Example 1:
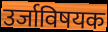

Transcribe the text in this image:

उर्जाविषयक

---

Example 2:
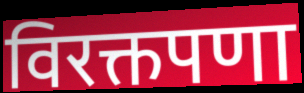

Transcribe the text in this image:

विरक्तपणा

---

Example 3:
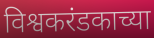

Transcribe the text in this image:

विश्वकरंडकाच्या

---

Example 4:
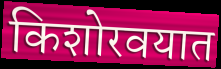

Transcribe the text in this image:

किशोरवयात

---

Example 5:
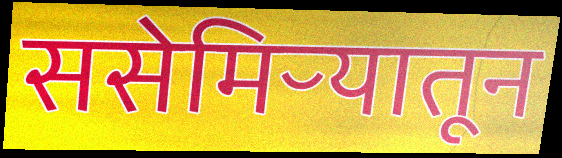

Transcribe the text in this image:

ससेमिऱ्यातून